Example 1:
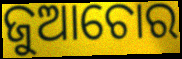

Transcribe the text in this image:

ଜୁଆଚୋର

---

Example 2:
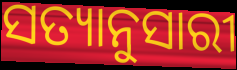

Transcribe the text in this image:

ସତ୍ୟାନୁସାରୀ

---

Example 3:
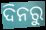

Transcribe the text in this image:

ଦିନରୁ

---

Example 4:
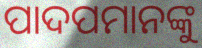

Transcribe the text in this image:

ପାଦପମାନଙ୍କୁ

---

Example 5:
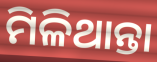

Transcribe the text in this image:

ମିଳିଥାନ୍ତା